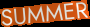
SUMMER